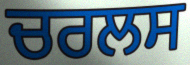
ਚਰਲਸ